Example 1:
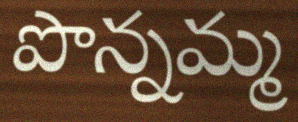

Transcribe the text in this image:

పొన్నమ్మ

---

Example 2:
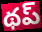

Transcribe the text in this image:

థప్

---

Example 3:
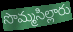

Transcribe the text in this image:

సొమ్మసిల్లారు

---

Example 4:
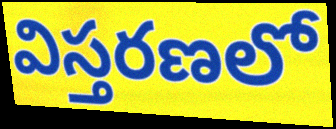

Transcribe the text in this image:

విస్తరణలో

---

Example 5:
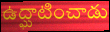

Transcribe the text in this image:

ఉద్ఘాటించాడు